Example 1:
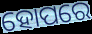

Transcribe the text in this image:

ହୋପରେ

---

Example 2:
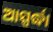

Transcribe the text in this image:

ଆସ୍ପର୍ଦ୍ଧା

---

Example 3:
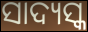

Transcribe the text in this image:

ସାଦ୍ୟସ୍କ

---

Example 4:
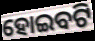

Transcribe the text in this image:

ହୋଇବଟି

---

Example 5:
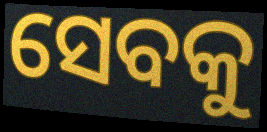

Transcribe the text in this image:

ସେବକୁ